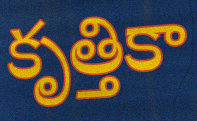
కృత్తికా